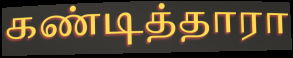
கண்டித்தாரா